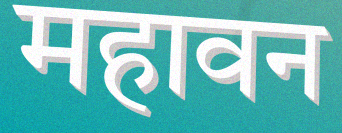
महावन